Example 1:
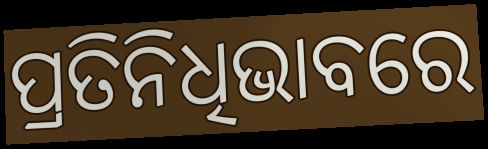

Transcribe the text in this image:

ପ୍ରତିନିଧିଭାବରେ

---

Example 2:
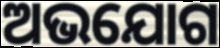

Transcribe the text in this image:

ଅଭଯୋଗ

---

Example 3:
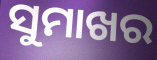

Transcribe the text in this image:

ସୁମାଖର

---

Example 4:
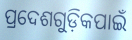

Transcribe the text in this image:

ପ୍ରଦେଶଗୁଡ଼ିକପାଇଁ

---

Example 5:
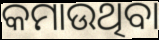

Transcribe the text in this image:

କମାଉଥିବା